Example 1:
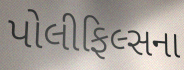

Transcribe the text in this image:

પોલીફિલ્સના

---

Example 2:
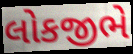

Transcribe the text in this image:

લોકજીભે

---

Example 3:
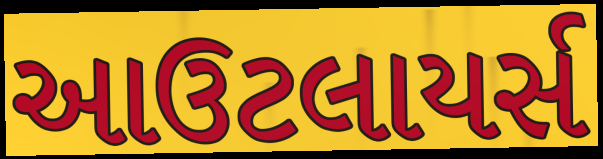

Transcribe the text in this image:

આઉટલાયર્સ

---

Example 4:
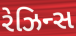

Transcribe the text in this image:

રેઝિન્સ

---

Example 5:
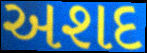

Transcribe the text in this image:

અશદ